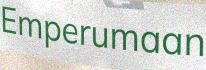
Emperumaan